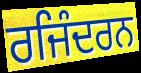
ਰਜਿੰਦਰਨ